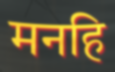
मनहि